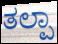
ತಲ್ಪಾ